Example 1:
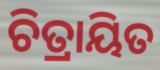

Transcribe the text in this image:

ଚିତ୍ରାୟିତ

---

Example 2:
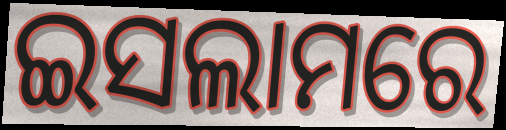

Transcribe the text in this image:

ଇସଲାମରେ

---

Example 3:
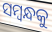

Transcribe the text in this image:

ସମ୍ବନ୍ଧକୁ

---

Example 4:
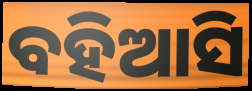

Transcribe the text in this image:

ବହିଆସି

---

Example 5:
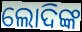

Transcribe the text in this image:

ଲୋଦିଙ୍କ